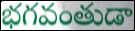
భగవంతుడా